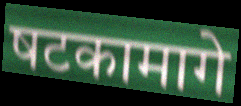
षटकामागे